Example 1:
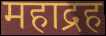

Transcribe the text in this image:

महाद्रह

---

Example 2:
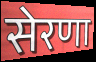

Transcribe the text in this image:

सेरणा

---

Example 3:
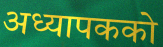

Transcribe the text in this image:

अध्यापकको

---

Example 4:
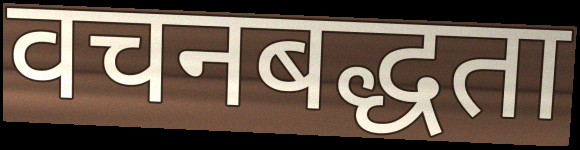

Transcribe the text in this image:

वचनबद्धता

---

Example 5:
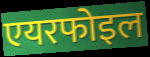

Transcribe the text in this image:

एयरफोइल